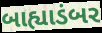
બાહ્યાડંબર